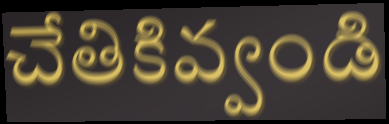
చేతికివ్వండి